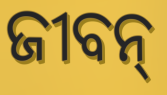
ଜୀବନ୍